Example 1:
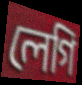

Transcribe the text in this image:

লেগি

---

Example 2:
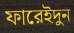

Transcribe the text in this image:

ফারেইদুন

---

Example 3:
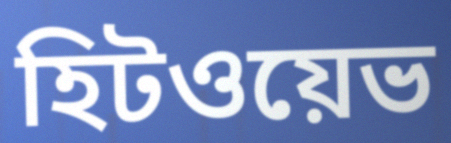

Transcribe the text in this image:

হিটওয়েভ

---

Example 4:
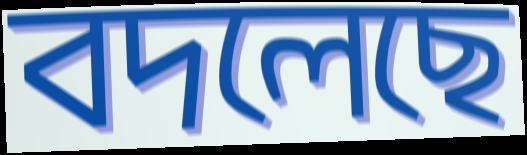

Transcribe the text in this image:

বদলেছে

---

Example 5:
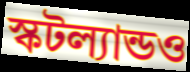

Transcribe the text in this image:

স্কটল্যান্ডও